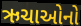
ઋચાઓનો